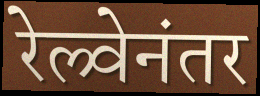
रेल्वेनंतर